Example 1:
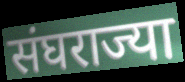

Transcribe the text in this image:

संघराज्या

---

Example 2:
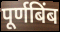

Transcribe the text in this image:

पूर्णबिंब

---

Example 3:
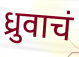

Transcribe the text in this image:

ध्रुवाचं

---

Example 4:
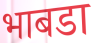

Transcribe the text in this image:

भाबडा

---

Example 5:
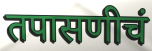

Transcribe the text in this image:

तपासणीचं